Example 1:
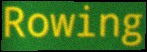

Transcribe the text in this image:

Rowing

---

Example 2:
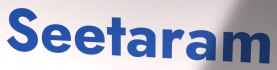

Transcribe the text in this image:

Seetaram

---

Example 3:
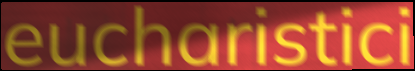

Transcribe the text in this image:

eucharistici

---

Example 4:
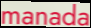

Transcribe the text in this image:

manada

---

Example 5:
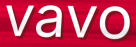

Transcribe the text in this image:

vavo